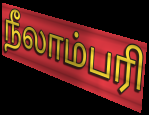
நீலாம்பரி